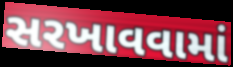
સરખાવવામાં